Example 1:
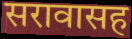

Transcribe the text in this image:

सरावासह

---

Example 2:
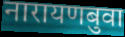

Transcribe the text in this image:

नारायणबुवा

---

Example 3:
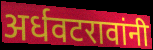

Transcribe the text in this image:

अर्धवटरावांनी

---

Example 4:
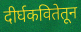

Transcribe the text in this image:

दीर्घकवितेतून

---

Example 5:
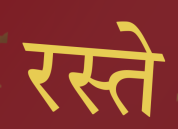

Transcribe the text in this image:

रस्ते